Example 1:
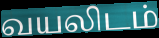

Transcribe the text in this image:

வயலிடம்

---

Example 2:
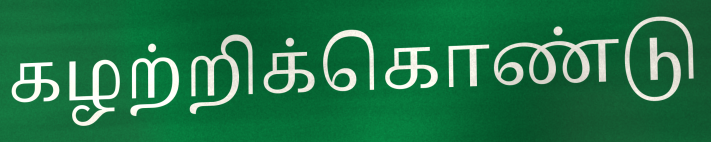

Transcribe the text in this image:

கழற்றிக்கொண்டு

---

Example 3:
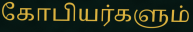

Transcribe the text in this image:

கோபியர்களும்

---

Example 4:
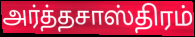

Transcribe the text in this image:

அர்த்தசாஸ்திரம்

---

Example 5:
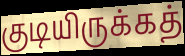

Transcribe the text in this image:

குடியிருக்கத்